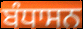
ਬੰਧਾਸਨ